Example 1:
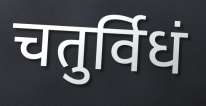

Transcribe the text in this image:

चतुर्विधं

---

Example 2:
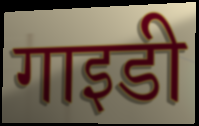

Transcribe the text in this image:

गाइडी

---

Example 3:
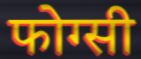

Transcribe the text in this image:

फोग्सी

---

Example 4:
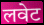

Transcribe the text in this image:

लवेट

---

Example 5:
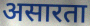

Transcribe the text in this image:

असारता